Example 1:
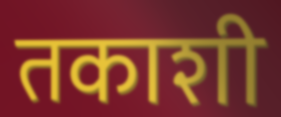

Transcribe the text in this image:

तकाशी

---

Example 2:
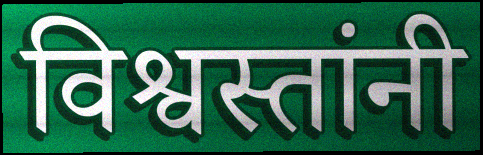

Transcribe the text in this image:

विश्वस्तांनी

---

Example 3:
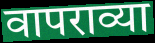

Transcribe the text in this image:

वापराव्या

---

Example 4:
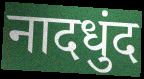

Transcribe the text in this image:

नादधुंद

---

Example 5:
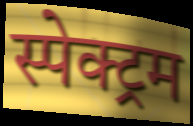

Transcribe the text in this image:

स्पेक्ट्रम